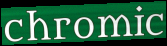
chromic